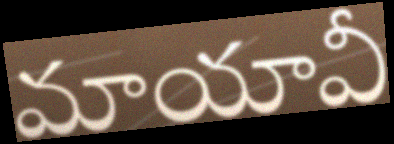
మాయావీ